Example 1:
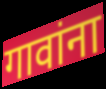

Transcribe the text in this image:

गावांना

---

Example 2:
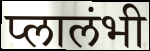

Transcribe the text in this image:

प्लालंभी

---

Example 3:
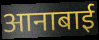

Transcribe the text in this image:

आनाबाई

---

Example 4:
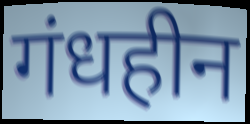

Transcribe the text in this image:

गंधहीन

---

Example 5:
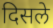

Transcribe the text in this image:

दिसले